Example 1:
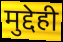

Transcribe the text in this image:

मुद्देही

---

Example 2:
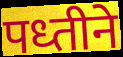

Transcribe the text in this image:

पध्तीने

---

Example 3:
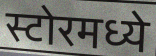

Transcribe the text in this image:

स्टोरमध्ये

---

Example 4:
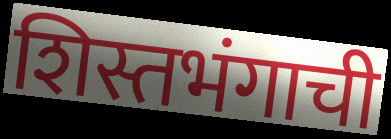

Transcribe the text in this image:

शिस्तभंगाची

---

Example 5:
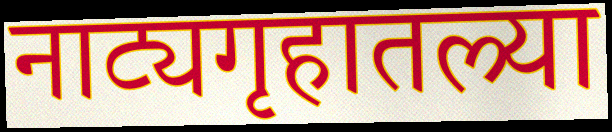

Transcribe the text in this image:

नाट्यगृहातल्या